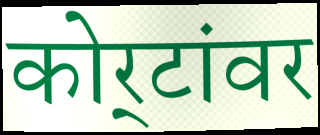
कोर्टांवर